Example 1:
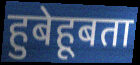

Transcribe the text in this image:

हुबेहूबता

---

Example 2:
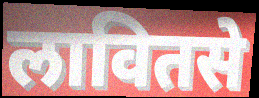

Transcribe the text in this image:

लावितसे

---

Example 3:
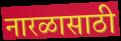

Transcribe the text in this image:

नारळासाठी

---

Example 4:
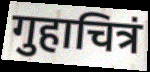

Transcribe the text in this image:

गुहाचित्रं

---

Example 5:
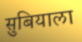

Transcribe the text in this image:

सुबियाला